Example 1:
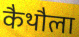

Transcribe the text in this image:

कैथौला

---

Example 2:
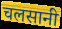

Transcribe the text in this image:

चलसानी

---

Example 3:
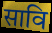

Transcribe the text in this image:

सावि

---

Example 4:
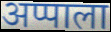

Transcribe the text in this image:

अप्पाला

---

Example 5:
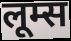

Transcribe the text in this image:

लूम्स